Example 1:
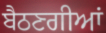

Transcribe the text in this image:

ਬੈਠਣਗੀਆਂ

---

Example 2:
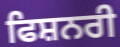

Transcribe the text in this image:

ਫਿਸ਼ਨਰੀ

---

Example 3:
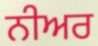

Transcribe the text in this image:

ਨੀਅਰ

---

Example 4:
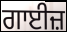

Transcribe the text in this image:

ਗਾਈਜ਼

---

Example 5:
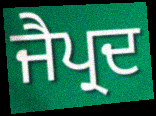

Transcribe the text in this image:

ਜੈਪ੍ਰਦ